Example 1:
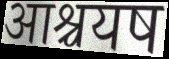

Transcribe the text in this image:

आश्चयष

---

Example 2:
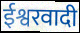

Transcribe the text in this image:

ईश्वरवादी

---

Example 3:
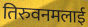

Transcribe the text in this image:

तिरुवनमलाई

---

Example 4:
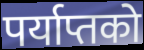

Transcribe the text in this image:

पर्याप्तको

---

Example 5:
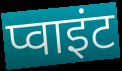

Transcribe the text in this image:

प्वाइंट